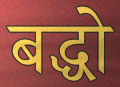
बद्धो